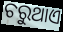
ଚରୁଥାଏ